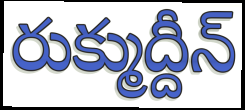
రుక్ముద్దీన్